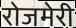
रोजमेरी